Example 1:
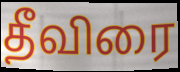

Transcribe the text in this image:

தீவிரை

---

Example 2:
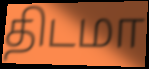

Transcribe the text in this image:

திடமா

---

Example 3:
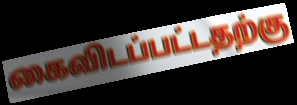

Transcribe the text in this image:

கைவிடப்பட்டதற்கு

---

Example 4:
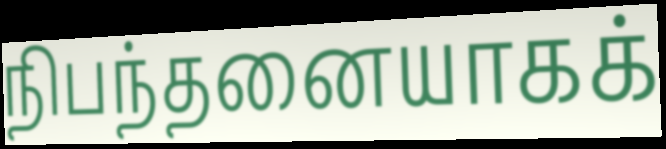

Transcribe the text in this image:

நிபந்தனையாகக்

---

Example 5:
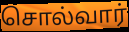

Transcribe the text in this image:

சொல்வார்